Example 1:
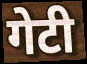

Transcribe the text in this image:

गेटी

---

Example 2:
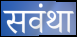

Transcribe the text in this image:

सवंथा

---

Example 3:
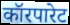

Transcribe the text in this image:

कॉरपारेट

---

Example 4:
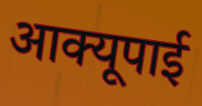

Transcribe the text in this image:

आक्यूपाई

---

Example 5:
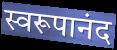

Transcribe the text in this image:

स्वरूपानंद